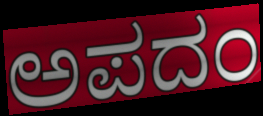
ಅಪದಂ